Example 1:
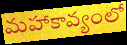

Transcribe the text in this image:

మహాకావ్యంలో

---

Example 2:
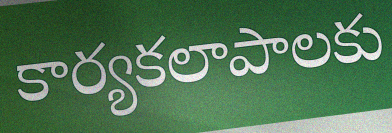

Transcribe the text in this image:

కార్యకలాపాలకు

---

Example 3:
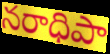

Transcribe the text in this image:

నరాధిపా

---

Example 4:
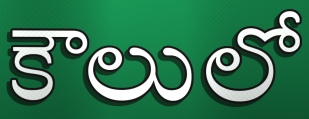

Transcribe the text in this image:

కౌలులో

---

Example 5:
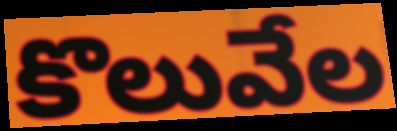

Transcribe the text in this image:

కొలువేల